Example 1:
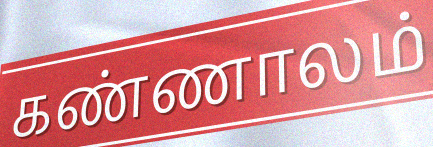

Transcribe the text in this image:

கண்ணாலம்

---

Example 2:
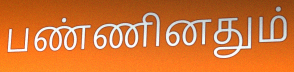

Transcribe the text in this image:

பண்ணினதும்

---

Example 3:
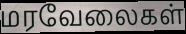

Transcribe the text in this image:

மரவேலைகள்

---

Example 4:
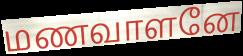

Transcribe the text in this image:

மணவாளனே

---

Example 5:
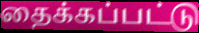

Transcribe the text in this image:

தைக்கப்பட்டு